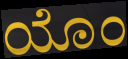
ಯೊಂ